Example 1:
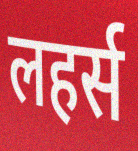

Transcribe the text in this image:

लहर्स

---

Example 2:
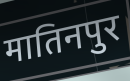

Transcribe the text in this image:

मातिनपुर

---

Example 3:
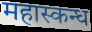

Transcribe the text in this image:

महास्कन्ध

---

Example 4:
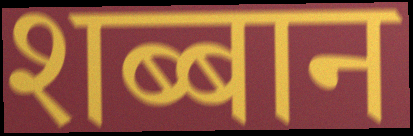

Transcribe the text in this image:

शब्बान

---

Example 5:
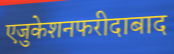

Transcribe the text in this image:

एजुकेशनफरीदाबाद